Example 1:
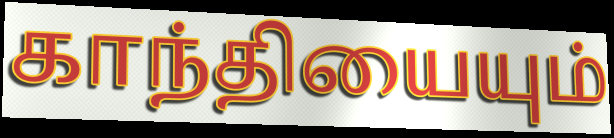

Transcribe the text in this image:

காந்தியையும்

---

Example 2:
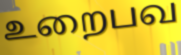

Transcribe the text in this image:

உறைபவ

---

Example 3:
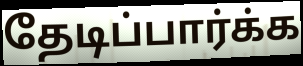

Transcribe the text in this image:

தேடிப்பார்க்க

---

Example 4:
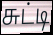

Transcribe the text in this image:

சுட்டி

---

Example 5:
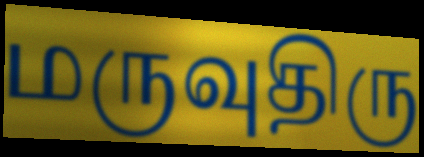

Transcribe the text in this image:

மருவுதிரு